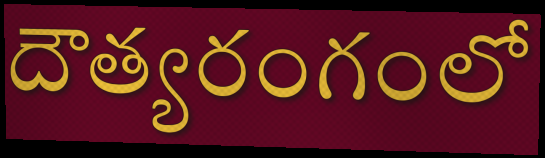
దౌత్యరంగంలో